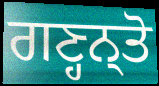
ਗਣ੍ਹਨ੍ਤੋ